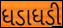
ધડાધડી